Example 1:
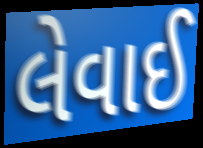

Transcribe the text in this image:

લેવાઈ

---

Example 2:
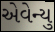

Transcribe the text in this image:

એવેન્યુ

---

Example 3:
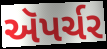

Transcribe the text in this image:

ઍપર્ચર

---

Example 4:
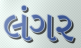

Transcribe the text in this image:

લંગર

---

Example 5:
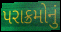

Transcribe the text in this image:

પરાક્રમોનું